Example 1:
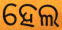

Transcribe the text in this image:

ହେଲ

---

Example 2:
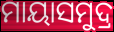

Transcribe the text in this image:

ମାୟାସମୁଦ୍ର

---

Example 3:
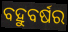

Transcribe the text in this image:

ବହୁବର୍ଷର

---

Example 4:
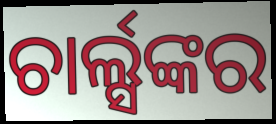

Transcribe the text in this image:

ଚାର୍ଲ୍ସଙ୍କର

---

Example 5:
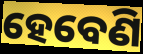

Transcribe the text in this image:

ହେବେଣି